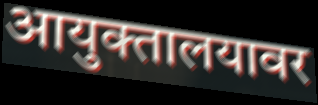
आयुक्तालयावर